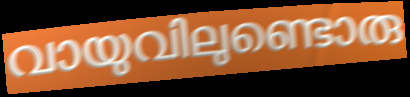
വായുവിലുണ്ടൊരു